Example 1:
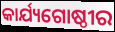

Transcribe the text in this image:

କାର୍ଯ୍ୟଗୋଷ୍ଠୀର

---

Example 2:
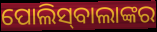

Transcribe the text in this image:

ପୋଲିସ୍‌ବାଲାଙ୍କର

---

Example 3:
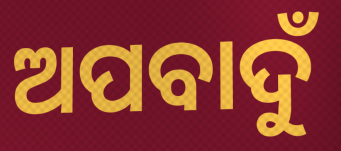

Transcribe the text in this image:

ଅପବାଦୁଁ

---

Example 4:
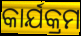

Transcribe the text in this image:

କାର୍ଯକ୍ରମ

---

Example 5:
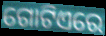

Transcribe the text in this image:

ଗୋଟିଏରେ